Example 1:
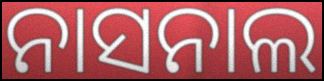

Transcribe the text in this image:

ନାସନାଲ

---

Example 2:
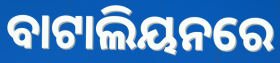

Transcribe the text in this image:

ବାଟାଲିୟନରେ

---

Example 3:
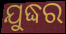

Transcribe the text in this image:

ଯୁଦ୍ଧର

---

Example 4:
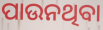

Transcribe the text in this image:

ପାଉନଥିବା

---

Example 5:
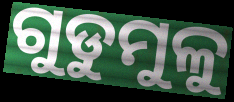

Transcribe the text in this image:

ଗୁଡୁମୁଳୁ